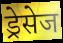
ड्रेसेज